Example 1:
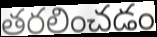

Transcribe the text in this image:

తరలించడం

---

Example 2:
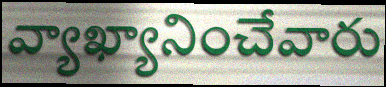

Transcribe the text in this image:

వ్యాఖ్యానించేవారు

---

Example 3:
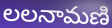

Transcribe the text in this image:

లలనామణి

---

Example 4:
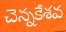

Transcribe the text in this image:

చెన్నకేశవ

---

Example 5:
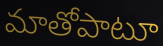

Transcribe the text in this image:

మాతోపాటూ